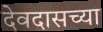
देवदासच्या